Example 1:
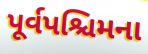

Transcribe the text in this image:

પૂર્વપશ્ચિમના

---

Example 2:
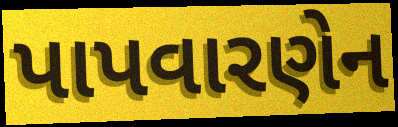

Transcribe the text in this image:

પાપવારણેન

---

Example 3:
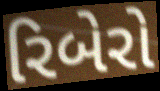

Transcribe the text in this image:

રિબેરો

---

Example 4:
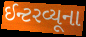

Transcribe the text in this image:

ઈન્ટરવ્યૂના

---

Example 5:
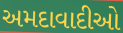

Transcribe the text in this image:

અમદાવાદીઓ